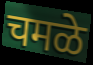
चमळे